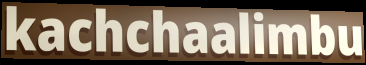
kachchaalimbu